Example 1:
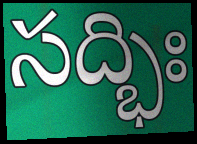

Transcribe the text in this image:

సద్భిః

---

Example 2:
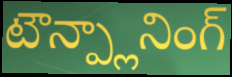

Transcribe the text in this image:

టౌన్ప్లానింగ్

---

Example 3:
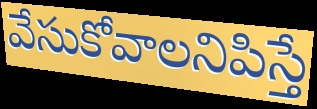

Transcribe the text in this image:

వేసుకోవాలనిపిస్తే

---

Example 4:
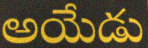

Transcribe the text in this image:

అయేడు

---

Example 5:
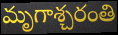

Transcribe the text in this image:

మృగాశ్చరంతి